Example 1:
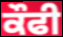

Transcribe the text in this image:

ਕੌਫੀ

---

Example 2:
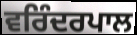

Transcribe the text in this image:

ਵਰਿੰਦਰਪਾਲ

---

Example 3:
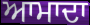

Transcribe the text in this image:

ਆਮਾਦਾ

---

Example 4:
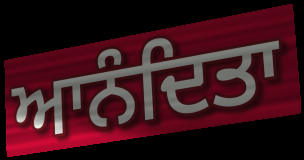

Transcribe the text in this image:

ਆਨੰਦਿਤਾ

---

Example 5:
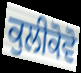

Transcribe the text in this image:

ਕੁਲੀਕੋਵੋ